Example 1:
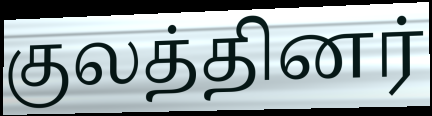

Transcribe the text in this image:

குலத்தினர்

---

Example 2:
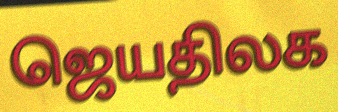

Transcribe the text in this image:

ஜெயதிலக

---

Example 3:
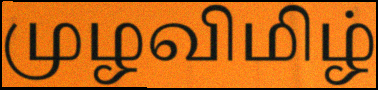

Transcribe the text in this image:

முழவிமிழ்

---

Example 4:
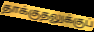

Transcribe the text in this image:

தாக்குதலுக்குப்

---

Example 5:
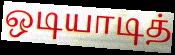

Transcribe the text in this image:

ஒடியாடித்